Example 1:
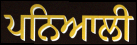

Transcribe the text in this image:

ਪਨਿਆਲੀ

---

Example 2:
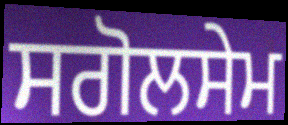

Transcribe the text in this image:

ਸਗੋਲਸੇਮ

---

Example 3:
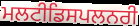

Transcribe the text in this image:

ਮਲਟੀਡਿਸਪਲਨਰੀ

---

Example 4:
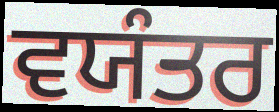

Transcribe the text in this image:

ਵਯੰਤਰ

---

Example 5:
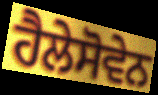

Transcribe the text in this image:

ਹੈਲੇਸੋਵੇਨ